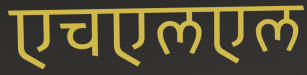
एचएलएल